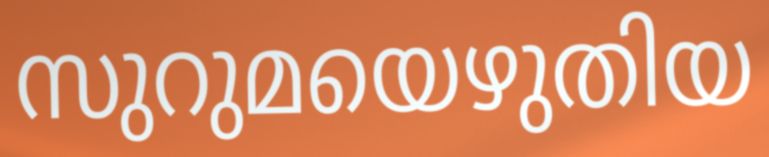
സുറുമയെഴുതിയ